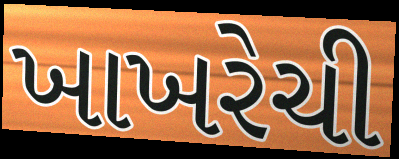
ખાખરેચી